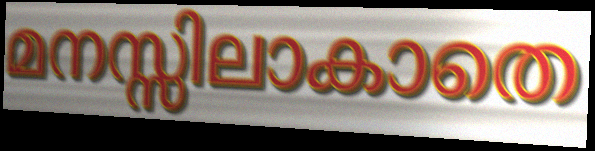
മനസ്സിലാകാതെ